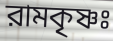
রামকৃষ্ণঃ